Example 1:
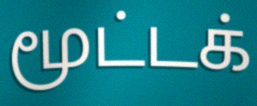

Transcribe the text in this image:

மூட்டக்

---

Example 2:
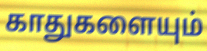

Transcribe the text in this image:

காதுகளையும்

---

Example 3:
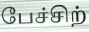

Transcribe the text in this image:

பேச்சிற்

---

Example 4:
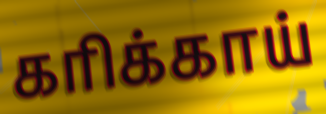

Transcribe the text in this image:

கரிக்காய்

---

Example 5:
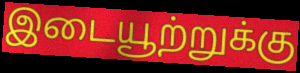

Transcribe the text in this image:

இடையூற்றுக்கு